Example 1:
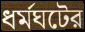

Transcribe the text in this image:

ধর্মঘটের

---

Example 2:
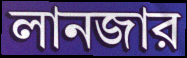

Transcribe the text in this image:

লানজার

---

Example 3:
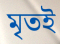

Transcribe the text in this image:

মৃতই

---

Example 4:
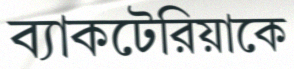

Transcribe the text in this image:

ব্যাকটেরিয়াকে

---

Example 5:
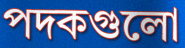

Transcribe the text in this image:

পদকগুলো